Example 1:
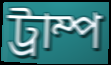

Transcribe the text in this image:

ট্রাম্প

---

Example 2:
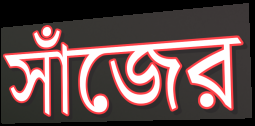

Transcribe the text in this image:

সাঁজের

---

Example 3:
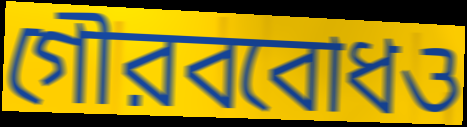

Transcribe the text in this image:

গৌরববোধও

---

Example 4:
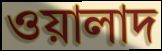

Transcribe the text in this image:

ওয়ালাদ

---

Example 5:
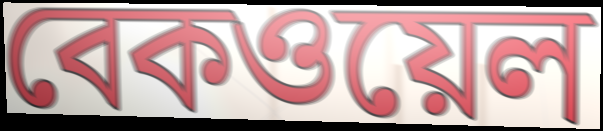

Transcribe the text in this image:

বেকওয়েল